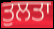
ਤੁਲਤਾ